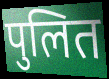
पुलित